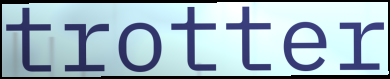
trotter